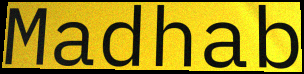
Madhab